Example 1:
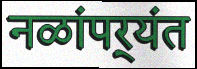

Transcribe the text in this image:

नळांपर्यंत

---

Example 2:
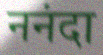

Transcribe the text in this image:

ननंदा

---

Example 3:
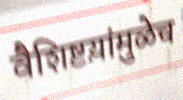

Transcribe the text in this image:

वैशिष्टय़ांमुळेच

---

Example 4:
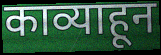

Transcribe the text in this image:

काव्याहून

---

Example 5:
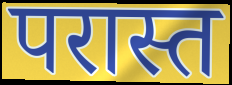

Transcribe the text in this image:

परास्त